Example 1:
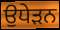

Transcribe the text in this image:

ਉਧੇੜਨ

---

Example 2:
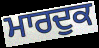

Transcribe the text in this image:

ਮਾਰਦੁਕ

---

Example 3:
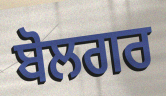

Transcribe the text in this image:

ਬੋਲਗਰ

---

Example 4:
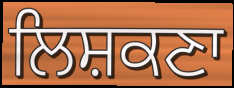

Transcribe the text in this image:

ਲਿਸ਼ਕਣਾ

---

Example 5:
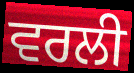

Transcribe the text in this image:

ਵਰਲੀ